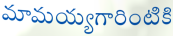
మామయ్యగారింటికి